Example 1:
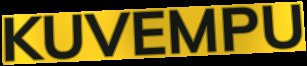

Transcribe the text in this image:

KUVEMPU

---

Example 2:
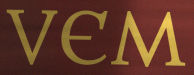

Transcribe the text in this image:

VEM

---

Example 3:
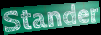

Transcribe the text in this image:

Stander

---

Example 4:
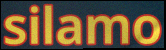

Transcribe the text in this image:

silamo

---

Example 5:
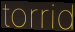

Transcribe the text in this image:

torrid